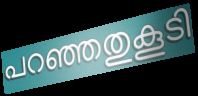
പറഞ്ഞതുകൂടി